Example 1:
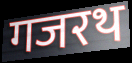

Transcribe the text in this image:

गजरथ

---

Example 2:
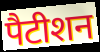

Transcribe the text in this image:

पैटीशन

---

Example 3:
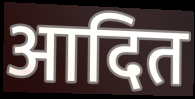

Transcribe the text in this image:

आदित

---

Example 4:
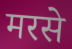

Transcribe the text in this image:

मरसे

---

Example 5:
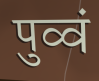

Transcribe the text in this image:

पुव्वं